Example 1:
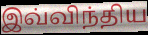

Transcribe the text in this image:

இவ்விந்திய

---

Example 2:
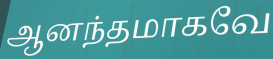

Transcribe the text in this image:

ஆனந்தமாகவே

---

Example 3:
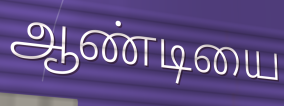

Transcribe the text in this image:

ஆண்டியை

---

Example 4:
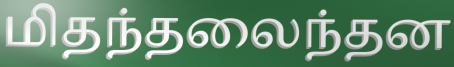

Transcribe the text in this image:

மிதந்தலைந்தன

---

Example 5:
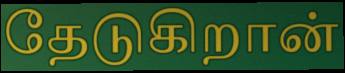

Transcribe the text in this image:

தேடுகிறான்